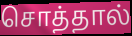
சொத்தால்